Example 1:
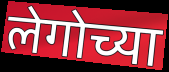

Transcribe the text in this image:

लेगोच्या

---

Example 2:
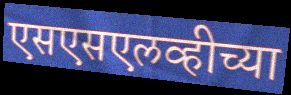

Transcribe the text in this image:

एसएसएलव्हीच्या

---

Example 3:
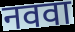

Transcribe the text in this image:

नववा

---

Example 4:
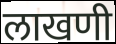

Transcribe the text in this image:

लाखणी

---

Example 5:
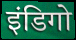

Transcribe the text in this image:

इंडिगो